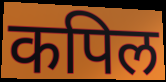
कपिल